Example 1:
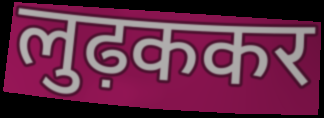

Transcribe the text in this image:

लुढ़ककर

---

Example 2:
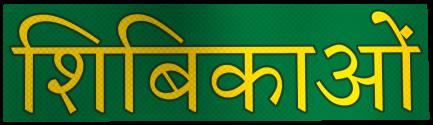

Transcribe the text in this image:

शिबिकाओं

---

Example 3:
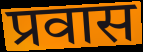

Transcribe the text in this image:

प्रवास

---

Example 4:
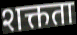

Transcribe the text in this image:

शक्तता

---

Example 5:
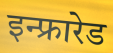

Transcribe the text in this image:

इन्फ्रारेड